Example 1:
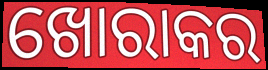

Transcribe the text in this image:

ଖୋରାକର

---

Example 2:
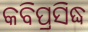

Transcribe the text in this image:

କବିପ୍ରସିଦ୍ଧ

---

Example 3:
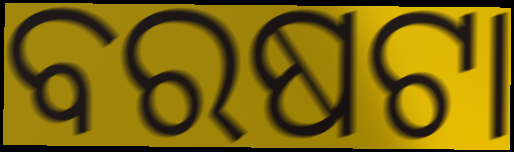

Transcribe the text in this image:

ବରଷଟା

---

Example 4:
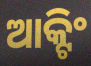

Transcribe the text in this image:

ଆକ୍ଟିଂ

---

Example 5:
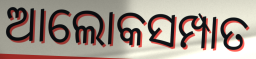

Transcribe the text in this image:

ଆଲୋକସମ୍ପାତ